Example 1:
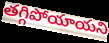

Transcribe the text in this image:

తగ్గిపోయాయని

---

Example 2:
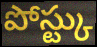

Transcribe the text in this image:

పోస్ట్కు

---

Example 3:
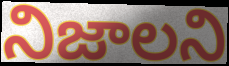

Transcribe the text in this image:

నిజాలని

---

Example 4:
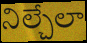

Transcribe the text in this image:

నిల్చేలా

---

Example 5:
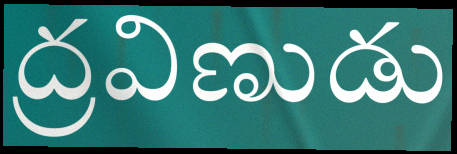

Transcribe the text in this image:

ద్రవిణుడు